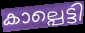
കാല്പെട്ടി